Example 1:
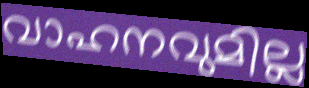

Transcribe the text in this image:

വാഹനവുമില്ല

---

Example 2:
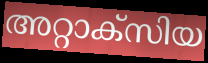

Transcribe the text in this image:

അറ്റാക്സിയ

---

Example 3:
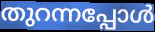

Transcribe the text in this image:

തുറന്നപ്പോൾ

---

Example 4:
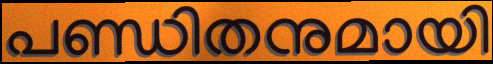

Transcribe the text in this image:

പണ്ഡിതനുമായി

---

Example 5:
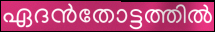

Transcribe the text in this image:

ഏദൻതോട്ടത്തിൽ